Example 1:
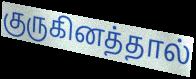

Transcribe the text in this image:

குருகினத்தால்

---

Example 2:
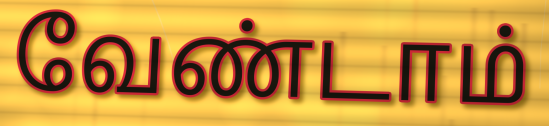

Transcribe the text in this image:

வேண்டாம்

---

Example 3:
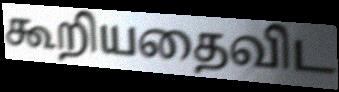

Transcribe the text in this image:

கூறியதைவிட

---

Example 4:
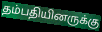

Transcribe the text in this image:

தம்பதியினருக்கு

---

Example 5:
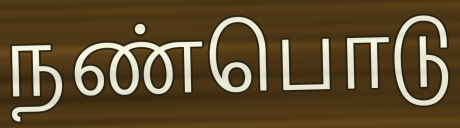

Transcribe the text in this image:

நண்பொடு